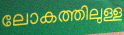
ലോകത്തിലുള്ള